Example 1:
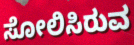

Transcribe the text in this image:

ಸೋಲಿಸಿರುವ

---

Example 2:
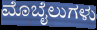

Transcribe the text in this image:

ಮೊಬೈಲುಗಳು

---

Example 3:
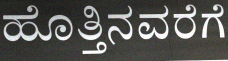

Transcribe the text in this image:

ಹೊತ್ತಿನವರೆಗೆ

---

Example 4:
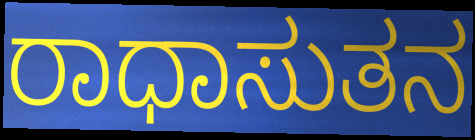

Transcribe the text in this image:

ರಾಧಾಸುತನ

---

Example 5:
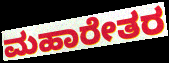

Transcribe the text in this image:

ಮಹಾರೇತರ